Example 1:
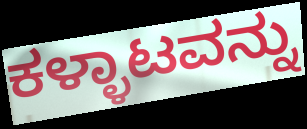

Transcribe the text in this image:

ಕಳ್ಳಾಟವನ್ನು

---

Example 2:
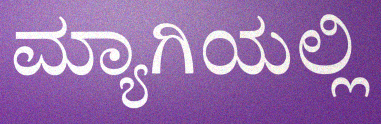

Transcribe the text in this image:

ಮ್ಯಾಗಿಯಲ್ಲಿ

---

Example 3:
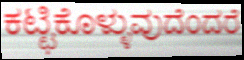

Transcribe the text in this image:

ಕಟ್ಟಿಕೊಳ್ಳುವುದೆಂದರೆ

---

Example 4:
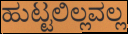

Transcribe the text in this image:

ಹುಟ್ಟಲಿಲ್ಲವಲ್ಲ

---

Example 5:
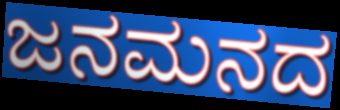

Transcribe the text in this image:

ಜನಮನದ